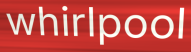
whirlpool